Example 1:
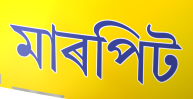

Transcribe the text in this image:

মাৰপিট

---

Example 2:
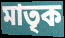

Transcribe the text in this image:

মাতৃক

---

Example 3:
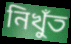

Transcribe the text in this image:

নিখুঁত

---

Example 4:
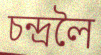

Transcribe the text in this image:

চন্দ্ৰলৈ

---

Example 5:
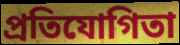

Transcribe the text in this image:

প্ৰতিযোগিতা